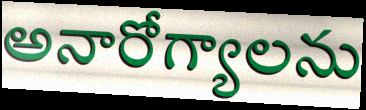
అనారోగ్యాలను